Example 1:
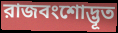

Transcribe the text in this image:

রাজবংশোদ্ভূত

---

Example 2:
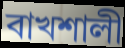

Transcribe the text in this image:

বাখশালী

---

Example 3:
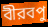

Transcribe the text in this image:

বীরবপু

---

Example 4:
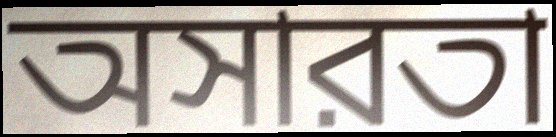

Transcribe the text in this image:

অসারতা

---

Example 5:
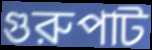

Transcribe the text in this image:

গুরুপাট